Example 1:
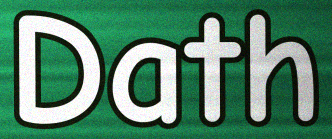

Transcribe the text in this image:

Dath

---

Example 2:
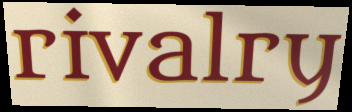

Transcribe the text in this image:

rivalry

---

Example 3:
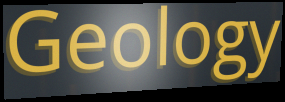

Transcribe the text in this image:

Geology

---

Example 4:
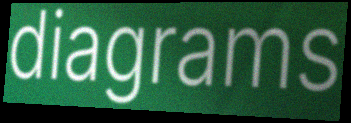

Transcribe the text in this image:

diagrams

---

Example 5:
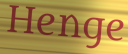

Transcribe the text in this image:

Henge